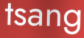
tsang